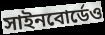
সাইনবোর্ডেও